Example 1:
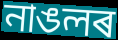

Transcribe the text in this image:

নাঙলৰ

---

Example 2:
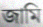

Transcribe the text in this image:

জামি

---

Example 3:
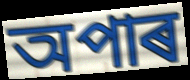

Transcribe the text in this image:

অপাৰ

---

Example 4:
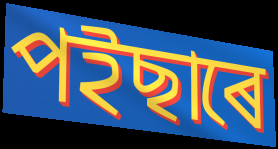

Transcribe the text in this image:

পইছাৰে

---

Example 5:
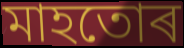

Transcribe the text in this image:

মাহতোৰ